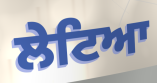
ਲੇਟਿਆ